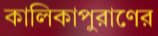
কালিকাপুরাণের